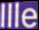
Ille